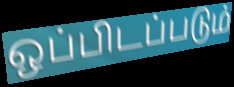
ஒப்பிடப்படும்